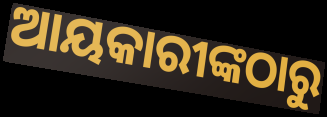
ଆୟକାରୀଙ୍କଠାରୁ